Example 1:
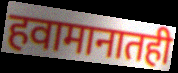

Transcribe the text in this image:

हवामानातही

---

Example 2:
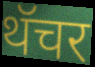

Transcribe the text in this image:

थॅचर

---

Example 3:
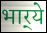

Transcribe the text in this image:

भार्ये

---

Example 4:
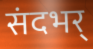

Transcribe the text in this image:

संदभर्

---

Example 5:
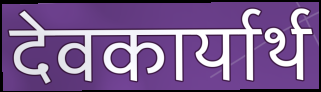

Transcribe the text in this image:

देवकार्यार्थ